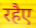
रहैए